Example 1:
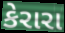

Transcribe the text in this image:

કેરારા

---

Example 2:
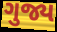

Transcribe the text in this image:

ગુજ્ય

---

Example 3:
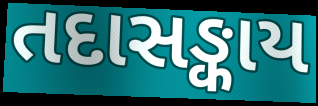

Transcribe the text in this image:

તદાસઙ્કાય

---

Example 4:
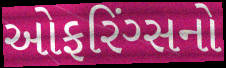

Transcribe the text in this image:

ઓફરિંગ્સનો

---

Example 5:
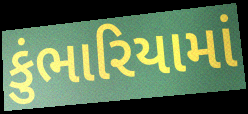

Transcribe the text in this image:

કુંભારિયામાં